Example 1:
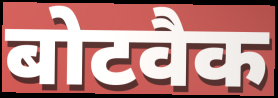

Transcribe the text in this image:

बोटवैक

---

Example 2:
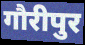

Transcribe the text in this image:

गौरीपुर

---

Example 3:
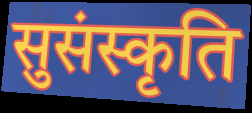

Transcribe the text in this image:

सुसंस्कृति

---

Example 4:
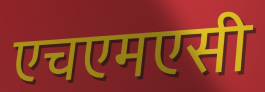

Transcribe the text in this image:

एचएमएसी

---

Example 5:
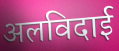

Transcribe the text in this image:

अलविदाई